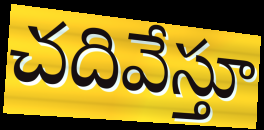
చదివేస్తూ